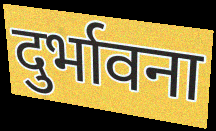
दुर्भावना